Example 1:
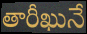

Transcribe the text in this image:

తారీఖునే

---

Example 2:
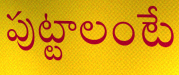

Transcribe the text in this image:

పుట్టాలంటే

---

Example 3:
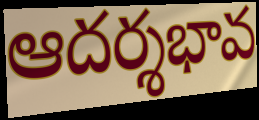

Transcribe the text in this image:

ఆదర్శభావ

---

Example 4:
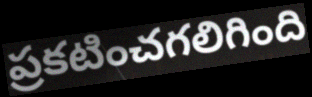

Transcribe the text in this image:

ప్రకటించగలిగింది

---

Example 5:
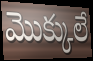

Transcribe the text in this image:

మొక్కులే